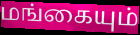
மங்கையும்